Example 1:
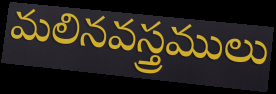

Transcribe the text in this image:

మలినవస్త్రములు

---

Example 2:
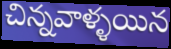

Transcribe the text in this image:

చిన్నవాళ్ళయిన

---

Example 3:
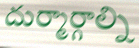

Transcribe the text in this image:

దుర్మార్గాల్ని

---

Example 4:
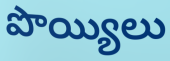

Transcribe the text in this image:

పొయ్యిలు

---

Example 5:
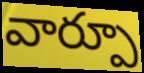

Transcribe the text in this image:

వార్పూ